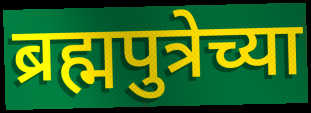
ब्रह्मपुत्रेच्या